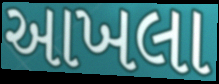
આખલા